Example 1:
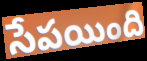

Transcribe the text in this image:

సేపయింది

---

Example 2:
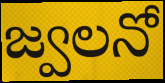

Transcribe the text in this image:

జ్వలనో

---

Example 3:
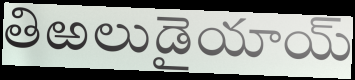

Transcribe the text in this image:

తిఱలుడైయాయ్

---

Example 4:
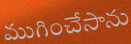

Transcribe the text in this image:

ముగించేసాను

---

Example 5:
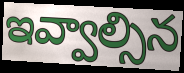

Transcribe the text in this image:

ఇవ్వాల్సిన